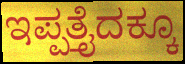
ಇಪ್ಪತ್ತೈದಕ್ಕೂ